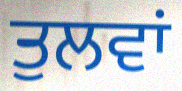
ਤੁਲਵਾਂ